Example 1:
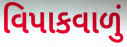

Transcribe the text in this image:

વિપાકવાળું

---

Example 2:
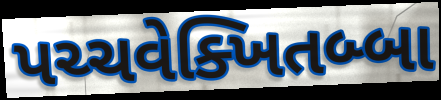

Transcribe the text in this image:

પચ્ચવેક્ખિતબ્બા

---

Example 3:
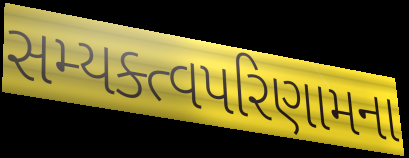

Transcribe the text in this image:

સમ્યક્ત્વપરિણામના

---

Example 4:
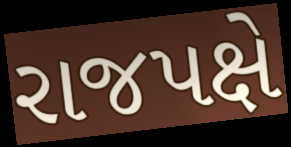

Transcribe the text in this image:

રાજપક્ષે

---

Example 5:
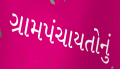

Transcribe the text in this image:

ગ્રામપંચાયતોનું